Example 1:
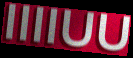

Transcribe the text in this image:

IIIIUU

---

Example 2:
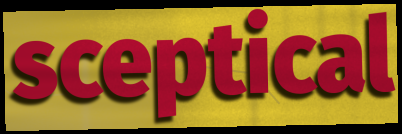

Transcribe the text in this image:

sceptical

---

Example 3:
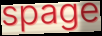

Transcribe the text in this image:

spage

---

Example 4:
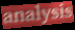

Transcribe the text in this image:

analysis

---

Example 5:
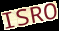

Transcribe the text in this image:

ISRO